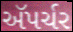
ઍપર્ચર